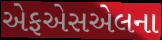
એફએસએલના